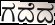
ಗದೆದ